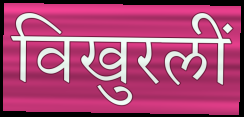
विखुरलीं